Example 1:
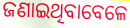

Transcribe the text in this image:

ଜଣାଇଥିବାବେଳେ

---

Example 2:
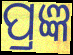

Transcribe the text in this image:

ପ୍ରଜ୍ଞ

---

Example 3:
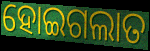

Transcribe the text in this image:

ହୋଇଗଲାତ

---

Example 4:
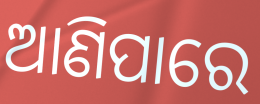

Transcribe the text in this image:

ଆଣିପାରେ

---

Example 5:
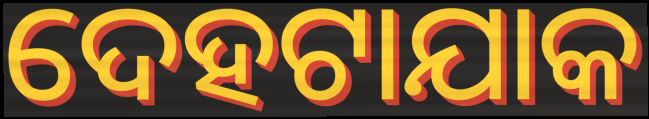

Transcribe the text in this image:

ଦେହଟାଯାକ